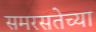
समरसतेच्या